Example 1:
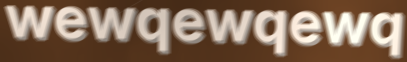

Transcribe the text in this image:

wewqewqewq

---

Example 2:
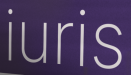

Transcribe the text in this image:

iuris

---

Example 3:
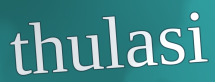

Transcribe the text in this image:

thulasi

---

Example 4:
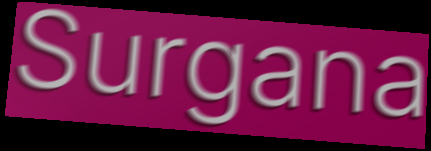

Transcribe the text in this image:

Surgana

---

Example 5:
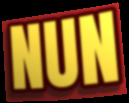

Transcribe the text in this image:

NUN